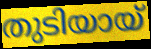
തുടിയായ്